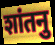
शांतनु